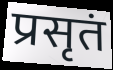
प्रसृतं